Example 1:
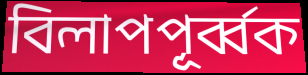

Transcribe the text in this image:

বিলাপপূর্ব্বক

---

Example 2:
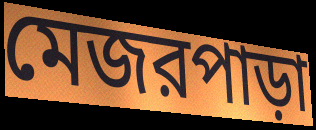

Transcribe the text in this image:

মেজরপাড়া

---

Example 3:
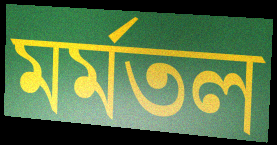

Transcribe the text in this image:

মর্মতল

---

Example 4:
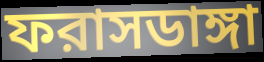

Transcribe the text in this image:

ফরাসডাঙ্গা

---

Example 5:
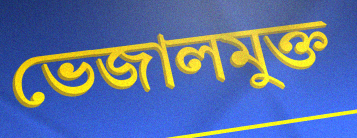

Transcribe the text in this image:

ভেজালমুক্ত